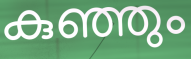
കുഞ്ഞും